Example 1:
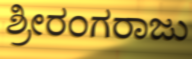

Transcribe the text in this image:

ಶ್ರೀರಂಗರಾಜು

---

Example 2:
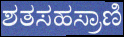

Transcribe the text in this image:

ಶತಸಹಸ್ರಾಣಿ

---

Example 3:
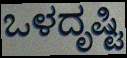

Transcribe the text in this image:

ಒಳದೃಷ್ಟಿ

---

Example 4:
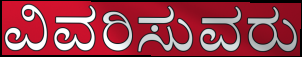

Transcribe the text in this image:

ವಿವರಿಸುವರು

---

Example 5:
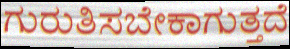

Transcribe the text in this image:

ಗುರುತಿಸಬೇಕಾಗುತ್ತದೆ